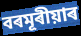
বৰমূৰীয়াৰ